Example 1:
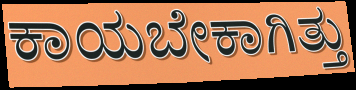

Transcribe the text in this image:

ಕಾಯಬೇಕಾಗಿತ್ತು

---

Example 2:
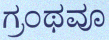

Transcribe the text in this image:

ಗ್ರಂಥವೂ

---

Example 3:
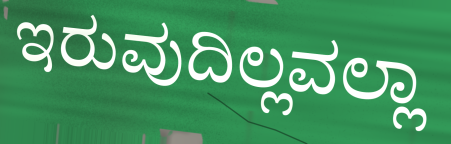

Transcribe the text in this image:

ಇರುವುದಿಲ್ಲವಲ್ಲಾ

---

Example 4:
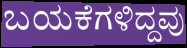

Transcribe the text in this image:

ಬಯಕೆಗಳಿದ್ದವು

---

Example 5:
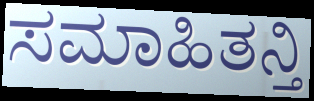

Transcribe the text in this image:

ಸಮಾಹಿತನ್ತಿ